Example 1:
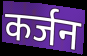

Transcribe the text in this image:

कर्जन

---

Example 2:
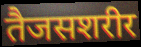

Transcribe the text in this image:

तैजसशरीर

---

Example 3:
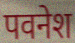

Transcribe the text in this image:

पवनेश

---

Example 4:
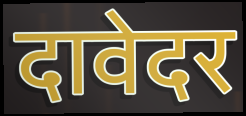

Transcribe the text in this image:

दावेदर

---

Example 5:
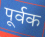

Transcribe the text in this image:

पूर्वक